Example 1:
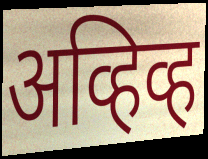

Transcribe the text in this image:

अव्हिव्ह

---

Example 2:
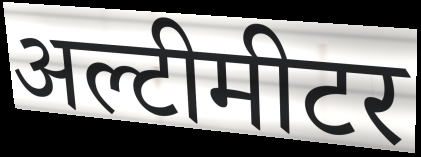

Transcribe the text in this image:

अल्टीमीटर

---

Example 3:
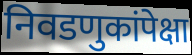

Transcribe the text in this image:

निवडणुकांपेक्षा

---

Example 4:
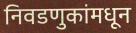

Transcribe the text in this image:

निवडणुकांमधून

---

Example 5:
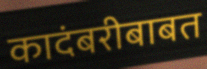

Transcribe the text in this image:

कादंबरीबाबत